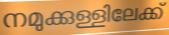
നമുക്കുള്ളിലേക്ക്